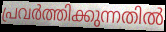
പ്രവർത്തിക്കുന്നതിൽ